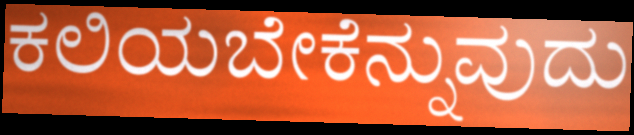
ಕಲಿಯಬೇಕೆನ್ನುವುದು